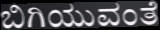
ಬಿಗಿಯುವಂತೆ